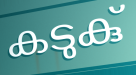
കടുകു്